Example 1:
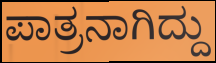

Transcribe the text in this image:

ಪಾತ್ರನಾಗಿದ್ದು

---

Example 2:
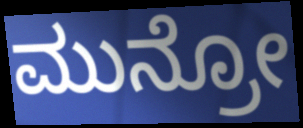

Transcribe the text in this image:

ಮುನ್ರೋ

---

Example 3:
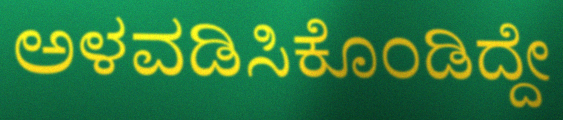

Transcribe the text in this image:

ಅಳವಡಿಸಿಕೊಂಡಿದ್ದೇ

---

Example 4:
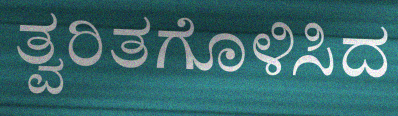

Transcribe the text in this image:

ತ್ವರಿತಗೊಳಿಸಿದ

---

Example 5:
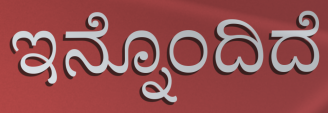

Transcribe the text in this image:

ಇನ್ನೊಂದಿದೆ